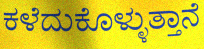
ಕಳೆದುಕೊಳ್ಳುತ್ತಾನೆ